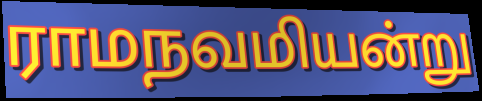
ராமநவமியன்று